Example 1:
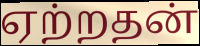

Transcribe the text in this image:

ஏற்றதன்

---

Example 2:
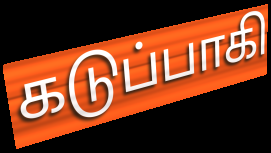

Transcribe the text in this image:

கடுப்பாகி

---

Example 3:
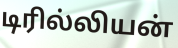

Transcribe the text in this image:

டிரில்லியன்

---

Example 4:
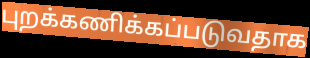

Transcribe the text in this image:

புறக்கணிக்கப்படுவதாக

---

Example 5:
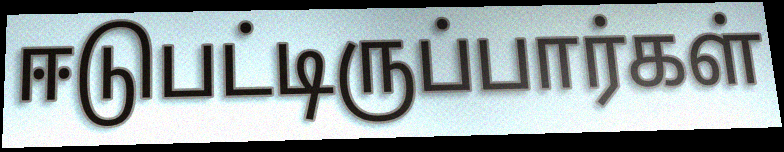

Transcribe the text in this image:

ஈடுபட்டிருப்பார்கள்